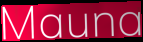
Mauna